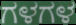
ಗಳಗಳ